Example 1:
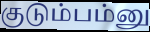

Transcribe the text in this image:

குடும்பம்னு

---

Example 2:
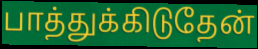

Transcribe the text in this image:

பாத்துக்கிடுதேன்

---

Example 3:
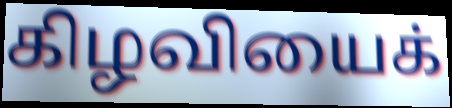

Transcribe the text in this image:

கிழவியைக்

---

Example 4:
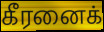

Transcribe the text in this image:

கீரனைக்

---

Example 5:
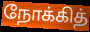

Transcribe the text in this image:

நோக்கித்